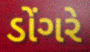
ડોંગરે